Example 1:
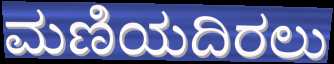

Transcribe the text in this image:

ಮಣಿಯದಿರಲು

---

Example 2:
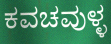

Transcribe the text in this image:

ಕವಚವುಳ್ಳ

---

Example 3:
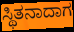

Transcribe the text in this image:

ಸ್ಥಿತನಾದಾಗ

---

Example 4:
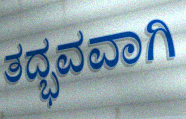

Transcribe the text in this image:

ತದ್ಭವವಾಗಿ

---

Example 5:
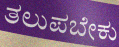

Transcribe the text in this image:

ತಲುಪಬೇಕು